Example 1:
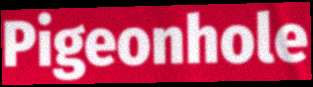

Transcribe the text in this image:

Pigeonhole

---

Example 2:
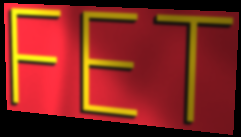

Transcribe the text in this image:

FET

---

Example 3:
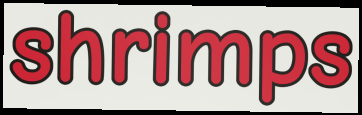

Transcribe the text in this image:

shrimps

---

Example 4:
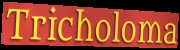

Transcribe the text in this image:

Tricholoma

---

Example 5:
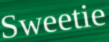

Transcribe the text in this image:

Sweetie